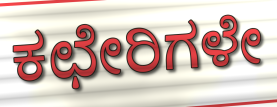
ಕಛೇರಿಗಳೇ